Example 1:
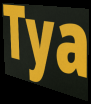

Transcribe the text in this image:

Tya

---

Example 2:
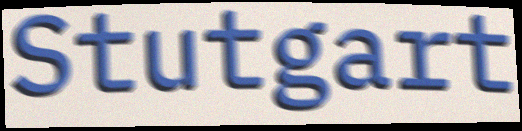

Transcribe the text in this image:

Stutgart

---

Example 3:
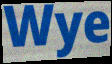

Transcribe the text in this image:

Wye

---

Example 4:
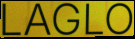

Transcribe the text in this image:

LAGLO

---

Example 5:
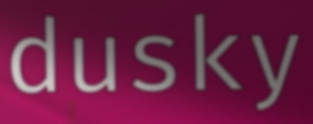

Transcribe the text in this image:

dusky